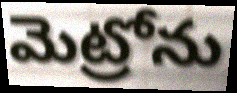
మెట్రోను